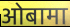
ओबामा